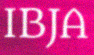
IBJA